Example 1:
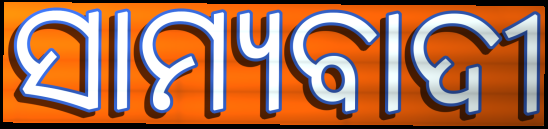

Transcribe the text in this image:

ସାମ୍ୟବାଦୀ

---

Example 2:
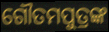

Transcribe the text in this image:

ଗୌତମପୁତ୍ରଙ୍କ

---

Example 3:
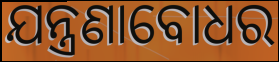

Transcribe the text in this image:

ଯନ୍ତ୍ରଣାବୋଧର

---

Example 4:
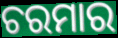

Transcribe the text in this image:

ଚରମାର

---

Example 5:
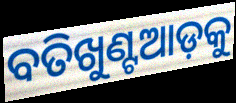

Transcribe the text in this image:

ବତିଖୁଣ୍ଟଆଡ଼କୁ